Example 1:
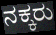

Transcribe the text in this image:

ನಕ್ಕರು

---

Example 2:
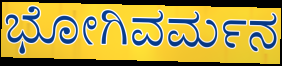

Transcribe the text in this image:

ಭೋಗಿವರ್ಮನ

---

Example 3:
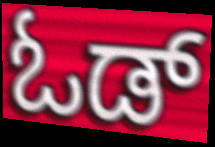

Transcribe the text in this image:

ಓಡ್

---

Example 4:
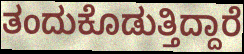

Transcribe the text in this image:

ತಂದುಕೊಡುತ್ತಿದ್ದಾರೆ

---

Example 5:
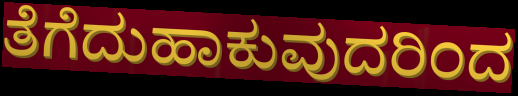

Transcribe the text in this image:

ತೆಗೆದುಹಾಕುವುದರಿಂದ